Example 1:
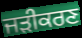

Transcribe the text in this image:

ਜੜੀਕਰਣ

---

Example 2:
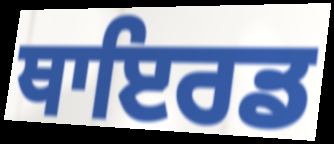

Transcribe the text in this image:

ਥਾਇਰਡ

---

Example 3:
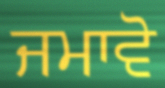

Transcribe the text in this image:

ਜਮਾਵੋ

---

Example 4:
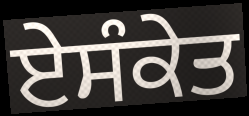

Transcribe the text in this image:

ਏਸੰਕੇਤ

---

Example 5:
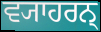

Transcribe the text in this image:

ਵ੍ਯਾਹਰਨ੍